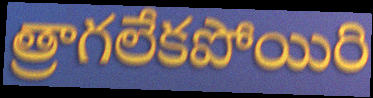
త్రాగలేకపోయిరి